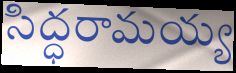
సిద్ధరామయ్య